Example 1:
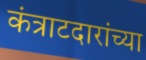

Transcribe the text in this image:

कंत्राटदारांच्या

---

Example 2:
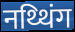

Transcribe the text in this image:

नथ्थिंग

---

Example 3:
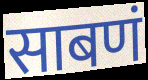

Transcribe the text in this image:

साबणं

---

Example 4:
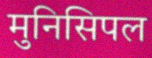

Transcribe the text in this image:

मुनिसिपल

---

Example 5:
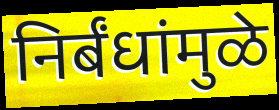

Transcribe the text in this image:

निर्बंधांमुळे